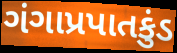
ગંગાપ્રપાતકુંડ